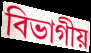
বিভাগীয়